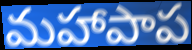
మహాపాప